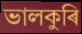
ভালকুৰি